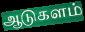
ஆடுகளம்